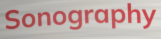
Sonography